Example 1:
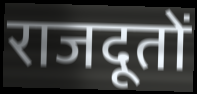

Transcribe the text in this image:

राजदूतों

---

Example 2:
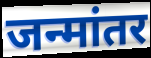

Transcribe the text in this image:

जन्मांतर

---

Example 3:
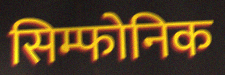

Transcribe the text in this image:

सिम्फोनिक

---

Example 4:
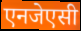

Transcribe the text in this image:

एनजेएसी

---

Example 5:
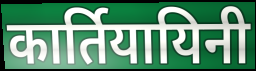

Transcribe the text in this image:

कार्तियायिनी